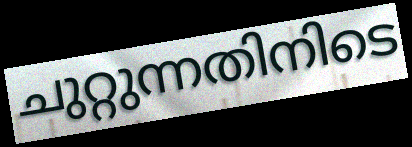
ചുറ്റുന്നതിനിടെ